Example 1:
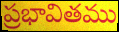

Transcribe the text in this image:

ప్రభావితము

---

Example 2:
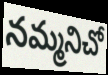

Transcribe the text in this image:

నమ్మనిచో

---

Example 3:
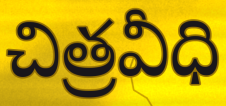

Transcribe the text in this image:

చిత్రవీధి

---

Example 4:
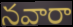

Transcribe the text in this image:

నవారా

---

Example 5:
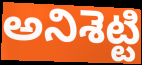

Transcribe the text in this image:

అనిశెట్టి